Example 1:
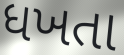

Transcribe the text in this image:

ધખતા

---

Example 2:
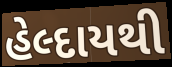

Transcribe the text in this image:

હેલ્દાયથી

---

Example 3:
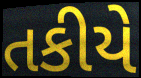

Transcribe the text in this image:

તકીયે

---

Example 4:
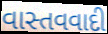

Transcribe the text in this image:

વાસ્તવવાદી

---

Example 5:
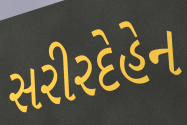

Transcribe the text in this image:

સરીરદેહેન